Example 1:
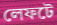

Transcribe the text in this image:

লেফটে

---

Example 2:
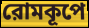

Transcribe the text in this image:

রোমকূপে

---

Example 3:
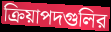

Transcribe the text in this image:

ক্রিয়াপদগুলির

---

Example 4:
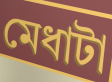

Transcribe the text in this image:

মেধাটা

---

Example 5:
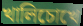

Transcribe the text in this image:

খালিচোখে